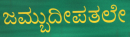
ಜಮ್ಬುದೀಪತಲೇ